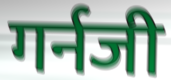
गर्नजी